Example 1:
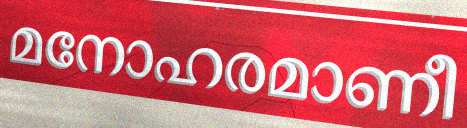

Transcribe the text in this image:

മനോഹരമാണീ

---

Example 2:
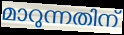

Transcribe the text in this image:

മാറുന്നതിന്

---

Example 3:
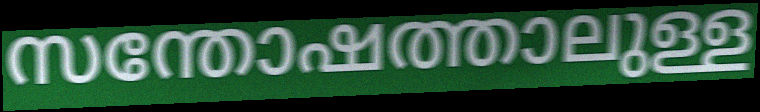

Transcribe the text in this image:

സന്തോഷത്താലുള്ള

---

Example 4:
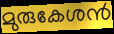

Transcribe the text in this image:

മുരുകേശൻ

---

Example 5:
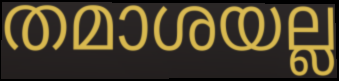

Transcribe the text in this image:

തമാശയല്ല